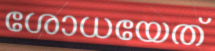
ശോധയേത്